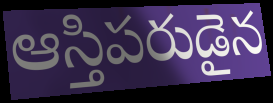
ఆస్తిపరుడైన